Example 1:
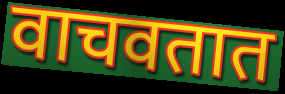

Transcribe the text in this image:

वाचवतात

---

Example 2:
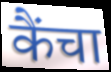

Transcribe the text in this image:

कैंचा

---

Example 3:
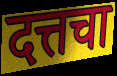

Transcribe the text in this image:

दत्तचा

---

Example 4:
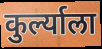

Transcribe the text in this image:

कुर्ल्याला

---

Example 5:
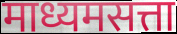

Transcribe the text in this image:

माध्यमसत्ता